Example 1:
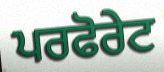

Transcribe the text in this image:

ਪਰਫੋਰੇਟ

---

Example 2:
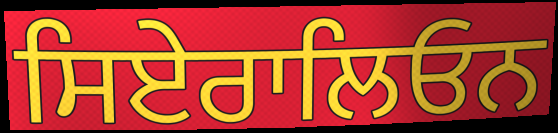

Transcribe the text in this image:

ਸਿਏਰਾਲਿਓਨ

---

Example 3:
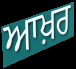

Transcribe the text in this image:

ਆਖ਼ਰ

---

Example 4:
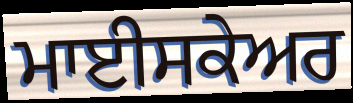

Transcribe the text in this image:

ਮਾਈਸਕੇਅਰ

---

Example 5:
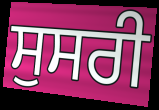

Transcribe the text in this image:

ਸੁਸਰੀ